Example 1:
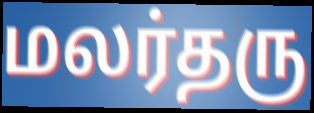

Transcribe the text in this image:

மலர்தரு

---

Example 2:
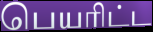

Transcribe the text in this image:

பெயரிட்ட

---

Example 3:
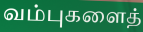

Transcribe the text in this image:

வம்புகளைத்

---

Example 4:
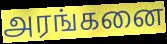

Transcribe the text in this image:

அரங்கனை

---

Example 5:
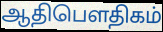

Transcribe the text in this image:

ஆதிபௌதிகம்